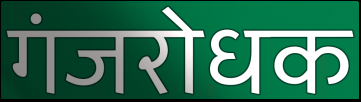
गंजरोधक